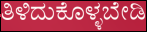
ತಿಳಿದುಕೊಳ್ಳಬೇಡಿ